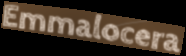
Emmalocera